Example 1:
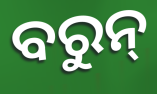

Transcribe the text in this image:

ବରୁନ୍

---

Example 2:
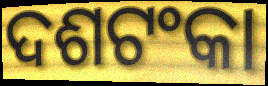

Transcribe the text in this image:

ଦଶଟଂକା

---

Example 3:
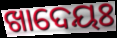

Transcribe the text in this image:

ଖାଦେୟଃ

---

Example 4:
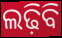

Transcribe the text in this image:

ଲଢ଼ିବି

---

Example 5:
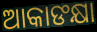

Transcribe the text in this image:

ଆକାଙକ୍ଷା